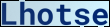
Lhotse